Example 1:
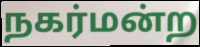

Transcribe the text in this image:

நகர்மன்ற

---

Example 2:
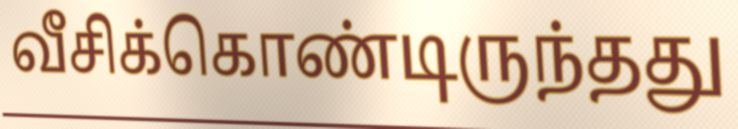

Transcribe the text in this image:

வீசிக்கொண்டிருந்தது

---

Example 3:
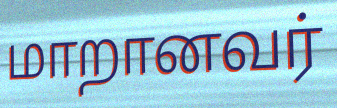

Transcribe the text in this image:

மாறானவர்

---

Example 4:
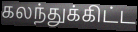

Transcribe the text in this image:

கலந்துக்கிட்ட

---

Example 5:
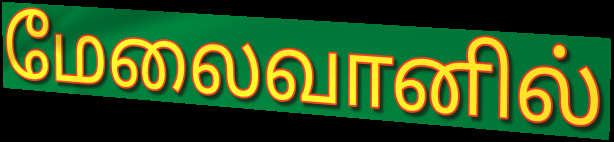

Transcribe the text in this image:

மேலைவானில்